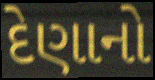
દેણાનો